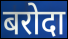
बरोदा